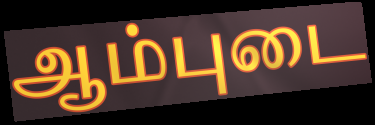
ஆம்புடை